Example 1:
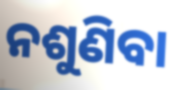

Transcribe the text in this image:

ନଶୁଣିବା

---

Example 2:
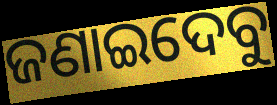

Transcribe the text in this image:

ଜଣାଇଦେବୁ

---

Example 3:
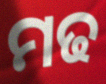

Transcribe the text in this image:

ମଢ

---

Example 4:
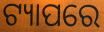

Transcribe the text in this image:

ଟ୍ୟାପରେ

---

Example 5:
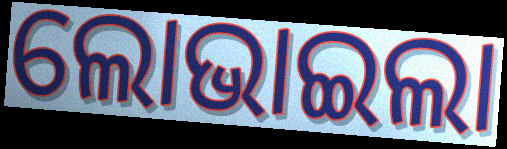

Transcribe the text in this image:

ଲୋଭାଇଲା